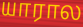
யாரால